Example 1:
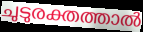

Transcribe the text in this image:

ചുടുരക്തത്താൽ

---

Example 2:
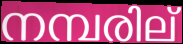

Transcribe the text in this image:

നമ്പരില്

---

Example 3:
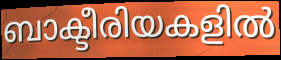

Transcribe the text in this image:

ബാക്ടീരിയകളിൽ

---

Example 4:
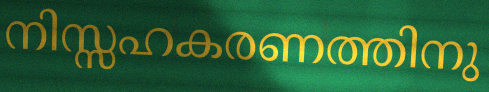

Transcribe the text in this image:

നിസ്സഹകരണത്തിനു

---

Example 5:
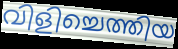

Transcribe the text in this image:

വിളിച്ചെത്തിയ